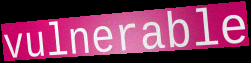
vulnerable